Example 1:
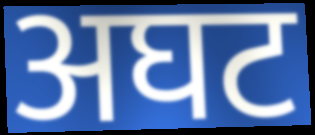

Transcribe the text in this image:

अघट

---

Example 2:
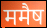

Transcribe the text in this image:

ममैष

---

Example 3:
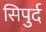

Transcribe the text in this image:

सिपुर्द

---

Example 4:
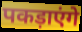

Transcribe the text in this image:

पकड़ाएंगे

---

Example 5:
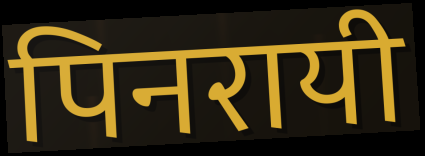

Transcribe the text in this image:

पिनरायी